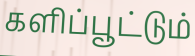
களிப்பூட்டும்